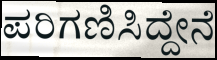
ಪರಿಗಣಿಸಿದ್ದೇನೆ